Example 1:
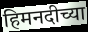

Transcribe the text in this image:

हिमनदीच्या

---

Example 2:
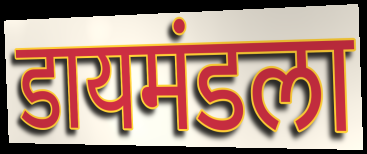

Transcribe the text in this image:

डायमंडला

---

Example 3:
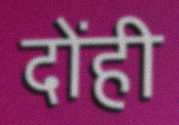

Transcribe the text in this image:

दोंही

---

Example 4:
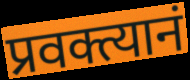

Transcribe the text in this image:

प्रवक्त्यानं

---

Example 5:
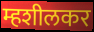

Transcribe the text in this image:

म्हशीलकर